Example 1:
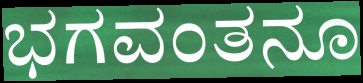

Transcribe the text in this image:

ಭಗವಂತನೂ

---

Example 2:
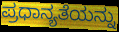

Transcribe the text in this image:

ಪ್ರಧಾನ್ಯತೆಯನ್ನು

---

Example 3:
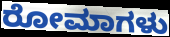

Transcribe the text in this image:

ರೋಮಾಗಳು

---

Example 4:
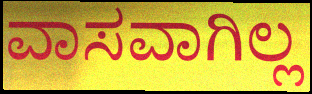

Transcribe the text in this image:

ವಾಸವಾಗಿಲ್ಲ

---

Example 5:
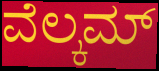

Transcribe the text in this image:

ವೆಲ್ಕಮ್